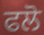
ਫਲੋ